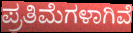
ಪ್ರತಿಮೆಗಳಾಗಿವೆ